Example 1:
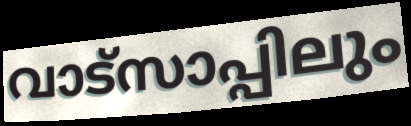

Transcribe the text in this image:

വാട്സാപ്പിലും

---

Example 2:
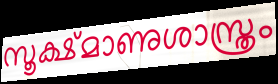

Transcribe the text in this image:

സൂക്ഷ്മാണുശാസ്ത്രം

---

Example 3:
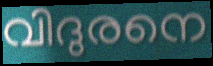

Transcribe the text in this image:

വിദുരനെ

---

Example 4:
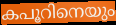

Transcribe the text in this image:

കപൂറിനെയും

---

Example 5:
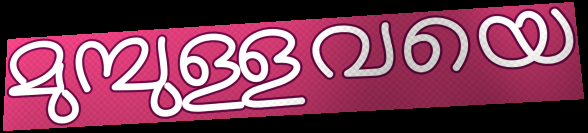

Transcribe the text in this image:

മുമ്പുള്ളവയെ